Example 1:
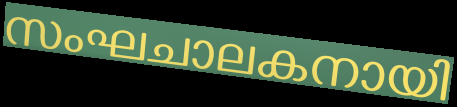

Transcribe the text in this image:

സംഘചാലകനായി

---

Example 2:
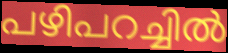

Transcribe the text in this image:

പഴിപറച്ചിൽ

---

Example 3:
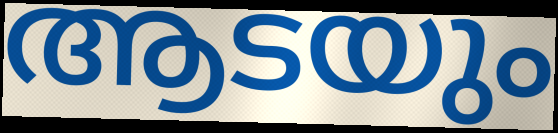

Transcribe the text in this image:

ആടയും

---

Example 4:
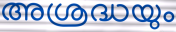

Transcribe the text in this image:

അശ്രദ്ധയും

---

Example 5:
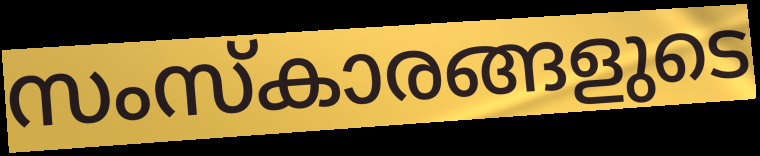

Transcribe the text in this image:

സംസ്കാരങ്ങളുടെ